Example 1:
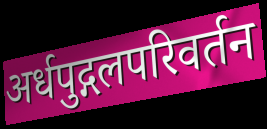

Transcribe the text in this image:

अर्धपुद्गलपरिवर्तन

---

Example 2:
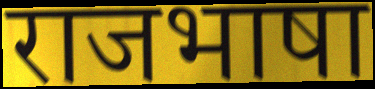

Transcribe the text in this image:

राजभाषा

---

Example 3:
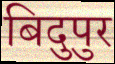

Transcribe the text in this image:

बिदुपुर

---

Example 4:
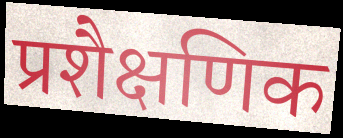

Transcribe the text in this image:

प्रशैक्षणिक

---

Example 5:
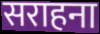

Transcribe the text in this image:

सराहना